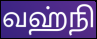
வஹ்நி